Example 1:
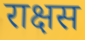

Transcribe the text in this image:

राक्षस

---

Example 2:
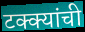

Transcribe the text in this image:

टक्क्यांची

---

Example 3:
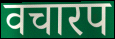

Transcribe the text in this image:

वचारप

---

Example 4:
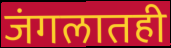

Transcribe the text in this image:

जंगलातही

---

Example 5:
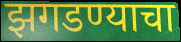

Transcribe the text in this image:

झगडण्याचा